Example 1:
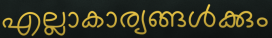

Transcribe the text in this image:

എല്ലാകാര്യങ്ങൾക്കും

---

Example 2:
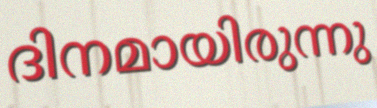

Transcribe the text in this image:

ദിനമായിരുന്നു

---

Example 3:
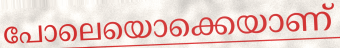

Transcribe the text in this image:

പോലെയൊക്കെയാണ്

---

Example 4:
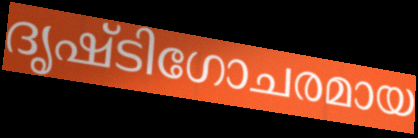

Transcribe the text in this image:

ദൃഷ്ടിഗോചരമായ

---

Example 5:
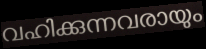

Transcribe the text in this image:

വഹിക്കുന്നവരായും